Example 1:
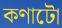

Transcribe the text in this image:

কণাটো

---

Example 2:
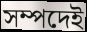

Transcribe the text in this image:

সম্পদেই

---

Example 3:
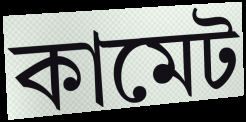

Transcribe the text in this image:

কামেট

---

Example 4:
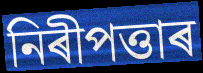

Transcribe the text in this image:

নিৰীপত্তাৰ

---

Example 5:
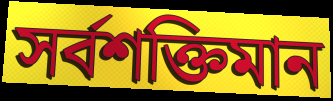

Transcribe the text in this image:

সৰ্বশক্তিমান